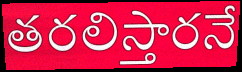
తరలిస్తారనే